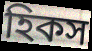
হিকস